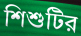
শিশুটির